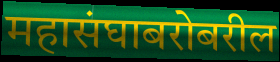
महासंघाबरोबरील